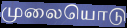
முலையொடு